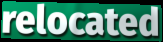
relocated